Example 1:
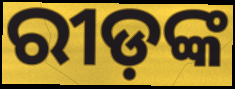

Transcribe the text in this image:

ରୀଡ଼ଙ୍କ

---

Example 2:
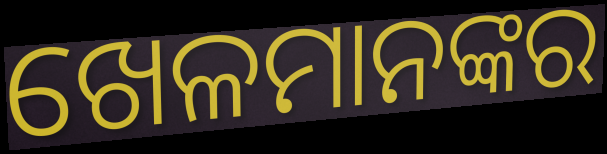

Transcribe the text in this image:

ଖେଳମାନଙ୍କର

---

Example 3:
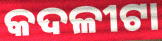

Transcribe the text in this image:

କଦଳୀଟା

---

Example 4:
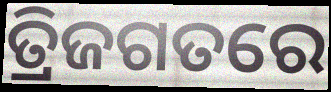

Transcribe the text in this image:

ତ୍ରିଜଗତରେ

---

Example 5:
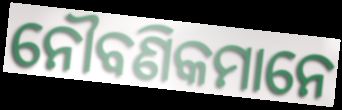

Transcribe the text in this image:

ନୌବଣିକମାନେ